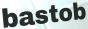
bastob